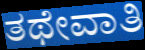
ತಥೇವಾತಿ